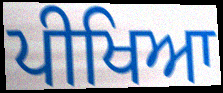
ਪੀਖਿਆ